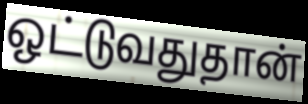
ஒட்டுவதுதான்